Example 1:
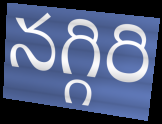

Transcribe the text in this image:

నగ్గిరి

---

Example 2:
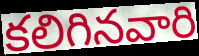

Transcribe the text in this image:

కలిగినవారి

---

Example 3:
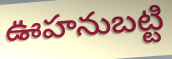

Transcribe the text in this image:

ఊహనుబట్టి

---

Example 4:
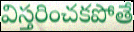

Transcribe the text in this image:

విస్తరించకపోతే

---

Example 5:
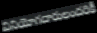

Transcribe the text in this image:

వినియోగదారులందరికీ